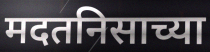
मदतनिसाच्या